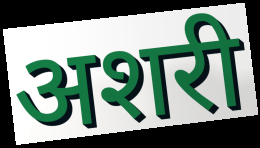
अशरी